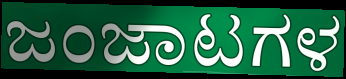
ಜಂಜಾಟಗಳ